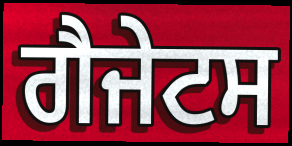
ਗੈਜੇਟਸ